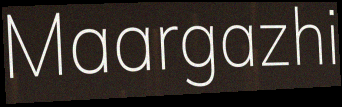
Maargazhi